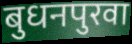
बुधनपुरवा